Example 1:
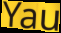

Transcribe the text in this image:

Yau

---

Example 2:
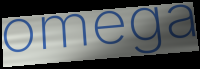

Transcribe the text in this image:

omega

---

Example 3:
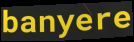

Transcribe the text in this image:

banyere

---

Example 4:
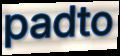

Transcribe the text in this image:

padto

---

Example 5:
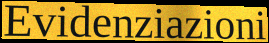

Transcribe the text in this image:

Evidenziazioni